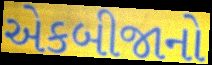
એકબીજાનો